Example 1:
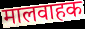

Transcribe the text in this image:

मालवाहक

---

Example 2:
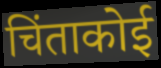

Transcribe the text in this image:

चिंताकोई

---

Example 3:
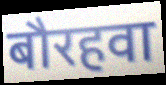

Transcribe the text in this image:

बौरहवा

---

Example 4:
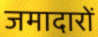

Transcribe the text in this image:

जमादारों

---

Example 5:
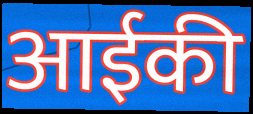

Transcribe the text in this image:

आईकी